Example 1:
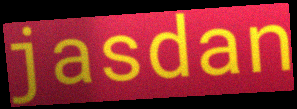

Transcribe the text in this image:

jasdan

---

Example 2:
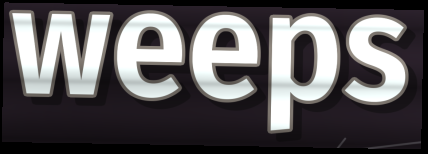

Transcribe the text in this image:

weeps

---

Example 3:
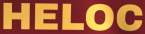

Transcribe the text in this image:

HELOC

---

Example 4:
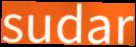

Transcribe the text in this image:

sudar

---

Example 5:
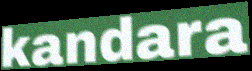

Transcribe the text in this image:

kandara